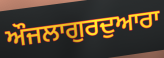
ਔਜਲਾਗੁਰਦੁਆਰਾ